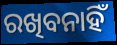
ରଖିବନାହିଁ